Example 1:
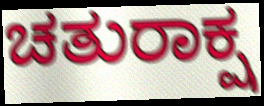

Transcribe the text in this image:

ಚತುರಾಕ್ಷ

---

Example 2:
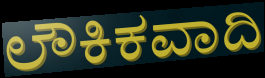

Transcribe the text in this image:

ಲೌಕಿಕವಾದಿ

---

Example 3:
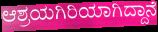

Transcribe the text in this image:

ಆಶ್ರಯಗಿರಿಯಾಗಿದ್ದಾನೆ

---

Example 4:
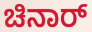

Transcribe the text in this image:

ಚಿನಾರ್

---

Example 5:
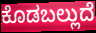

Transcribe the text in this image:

ಕೊಡಬಲ್ಲುದೆ